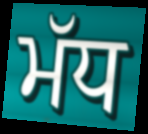
ਮੱਧ